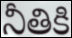
నీతికి